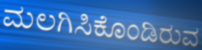
ಮಲಗಿಸಿಕೊಂಡಿರುವ